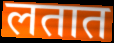
लतात